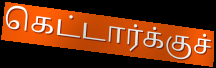
கெட்டார்க்குச்